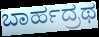
ಬಾರ್ಹದ್ರಥ